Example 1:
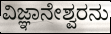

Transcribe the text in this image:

ವಿಜ್ಞಾನೇಶ್ವರನು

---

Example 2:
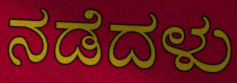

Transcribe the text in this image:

ನಡೆದಳು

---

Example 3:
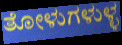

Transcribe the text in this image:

ತೋಳುಗಳುಳ್ಳ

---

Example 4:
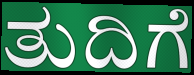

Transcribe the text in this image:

ತುದಿಗೆ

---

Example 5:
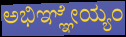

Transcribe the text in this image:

ಅಭಿಞ್ಞೇಯ್ಯಂ